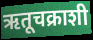
ऋतूचक्राशी